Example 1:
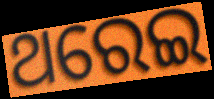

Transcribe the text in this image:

ଥରେଇ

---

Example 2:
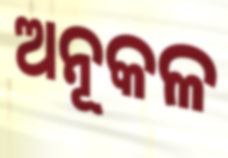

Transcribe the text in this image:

ଅନୂକଳ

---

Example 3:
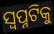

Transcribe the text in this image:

ସ୍ୱପ୍ନଟିକୁ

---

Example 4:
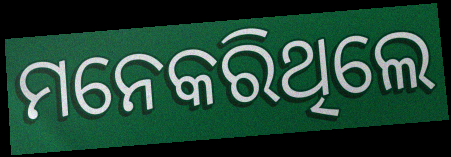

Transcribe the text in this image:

ମନେକରିଥିଲେ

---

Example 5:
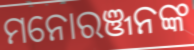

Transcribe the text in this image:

ମନୋରଞ୍ଜନଙ୍କ